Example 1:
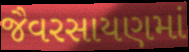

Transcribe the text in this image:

જૈવરસાયણમાં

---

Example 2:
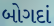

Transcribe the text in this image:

બોગદાં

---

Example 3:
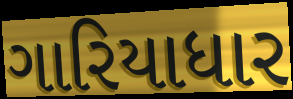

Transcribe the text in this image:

ગારિયાધાર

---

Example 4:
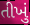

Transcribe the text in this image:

તીખું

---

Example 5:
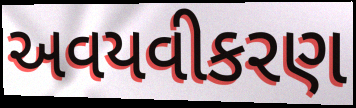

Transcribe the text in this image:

અવયવીકરણ